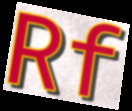
Rf